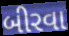
બીરવા